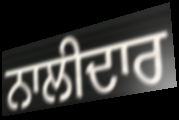
ਨਾਲੀਦਾਰ